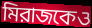
মিরাজকেও